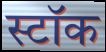
स्टॉक